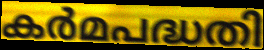
കർമപദ്ധതി